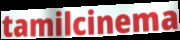
tamilcinema